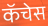
कॅचेस